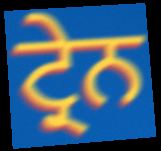
ਟ੍ਰੇਨ